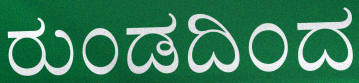
ರುಂಡದಿಂದ